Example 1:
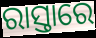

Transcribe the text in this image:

ରାସ୍ତାରେ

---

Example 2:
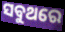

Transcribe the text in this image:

ସବୁଥରେ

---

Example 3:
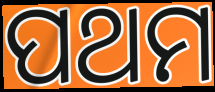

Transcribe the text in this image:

ପଥମ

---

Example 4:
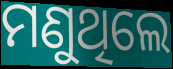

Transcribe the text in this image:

ମଣୁଥିଲେ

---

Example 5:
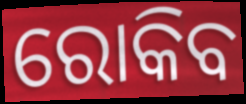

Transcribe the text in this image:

ରୋକିବ